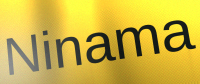
Ninama